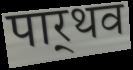
पार्थव